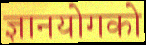
ज्ञानयोगको